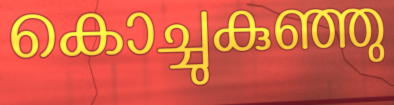
കൊച്ചുകുഞ്ഞു